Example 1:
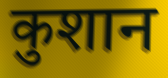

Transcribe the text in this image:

कुशान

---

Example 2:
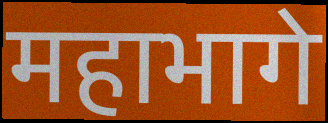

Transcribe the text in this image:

महाभागे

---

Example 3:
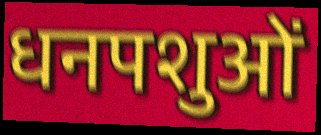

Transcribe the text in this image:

धनपशुओं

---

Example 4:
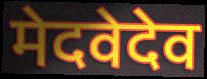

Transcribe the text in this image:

मेदवेदेव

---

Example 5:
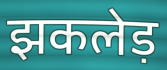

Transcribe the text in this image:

झकलेड़